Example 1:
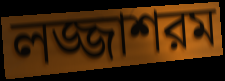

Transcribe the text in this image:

লজ্জাশরম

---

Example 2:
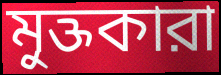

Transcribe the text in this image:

মুক্তকারা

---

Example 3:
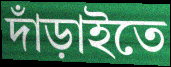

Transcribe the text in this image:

দাঁড়াইতে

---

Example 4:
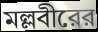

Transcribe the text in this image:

মল্লবীরের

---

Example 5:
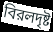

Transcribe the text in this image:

বিরলদৃষ্ট